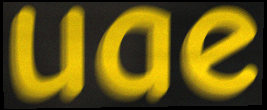
uae